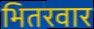
भितरवार